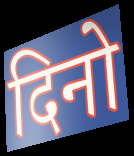
दिनो